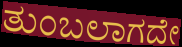
ತುಂಬಲಾಗದೇ